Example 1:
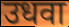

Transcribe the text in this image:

उधवा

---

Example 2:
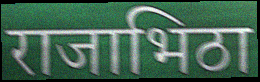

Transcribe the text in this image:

राजाभिठा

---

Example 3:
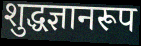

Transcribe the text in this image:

शुद्धज्ञानरूप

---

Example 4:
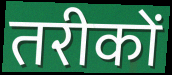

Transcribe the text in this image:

तरीकों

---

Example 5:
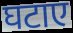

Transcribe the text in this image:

घटाए